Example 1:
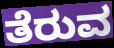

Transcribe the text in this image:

ತೆರುವ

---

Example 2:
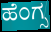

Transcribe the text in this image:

ಹೆಂಗ್ಸ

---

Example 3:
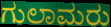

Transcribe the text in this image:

ಗುಲಾಮರು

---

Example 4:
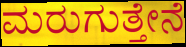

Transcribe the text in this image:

ಮರುಗುತ್ತೇನೆ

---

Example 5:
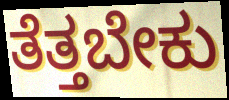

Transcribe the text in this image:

ತೆತ್ತಬೇಕು